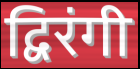
द्विरंगी